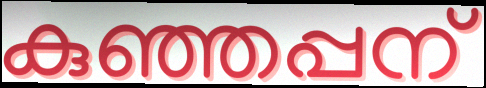
കുഞ്ഞപ്പന്